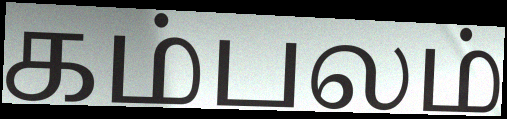
கம்பலம்